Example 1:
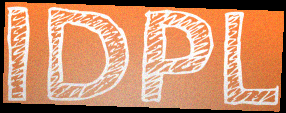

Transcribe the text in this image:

IDPL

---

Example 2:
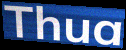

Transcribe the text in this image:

Thua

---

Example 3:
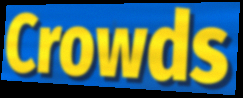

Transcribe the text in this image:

Crowds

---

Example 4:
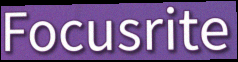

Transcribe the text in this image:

Focusrite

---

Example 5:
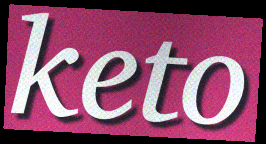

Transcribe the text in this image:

keto